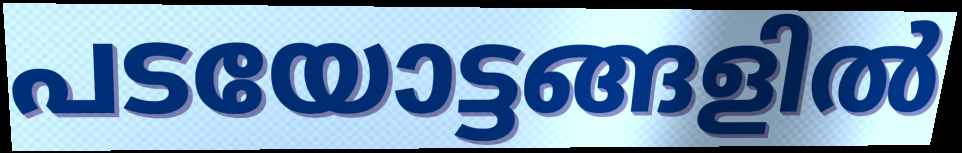
പടയോട്ടങ്ങളിൽ